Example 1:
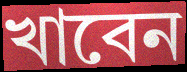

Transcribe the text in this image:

খাবেন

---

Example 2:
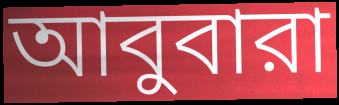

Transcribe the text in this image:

আবুবারা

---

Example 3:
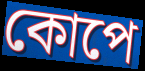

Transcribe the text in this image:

কোপে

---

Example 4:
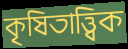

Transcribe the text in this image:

কৃষিতাত্ত্বিক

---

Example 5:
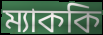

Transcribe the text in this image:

ম্যাককি